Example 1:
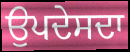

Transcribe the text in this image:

ਉਪਦੇਸਦਾ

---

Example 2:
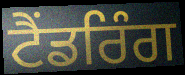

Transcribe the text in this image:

ਟੈਂਡਰਿੰਗ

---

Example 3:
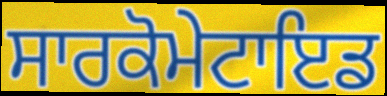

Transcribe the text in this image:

ਸਾਰਕੋਮੇਟਾਇਡ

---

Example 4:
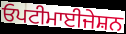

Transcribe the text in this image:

ਓਪਟੀਮਾਈਜੇਸ਼ਨ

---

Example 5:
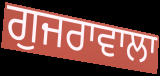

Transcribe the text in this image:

ਗੁਜਰਾਵਾਲਾ